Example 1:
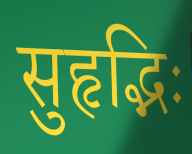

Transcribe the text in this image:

सुहृद्भिः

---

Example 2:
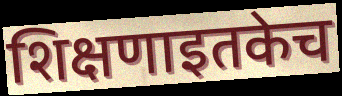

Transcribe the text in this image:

शिक्षणाइतकेच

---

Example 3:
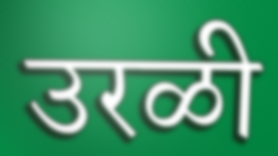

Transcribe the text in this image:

उरळी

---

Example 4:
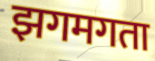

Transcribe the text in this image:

झगमगता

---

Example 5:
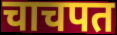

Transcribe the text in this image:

चाचपत